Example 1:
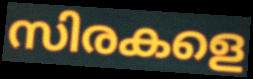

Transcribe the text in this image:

സിരകളെ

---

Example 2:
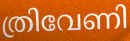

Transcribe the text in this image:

ത്രിവേണി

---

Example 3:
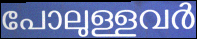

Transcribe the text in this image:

പോലുള്ളവർ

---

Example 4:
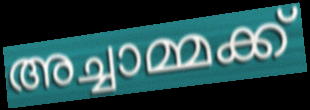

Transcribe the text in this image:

അച്ചാമ്മക്ക്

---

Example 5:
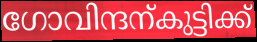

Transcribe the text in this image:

ഗോവിന്ദന്കുട്ടിക്ക്